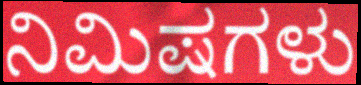
ನಿಮಿಷಗಳು